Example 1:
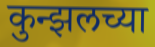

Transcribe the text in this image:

कुन्झलच्या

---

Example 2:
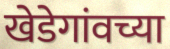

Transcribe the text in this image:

खेडेगांवच्या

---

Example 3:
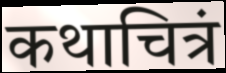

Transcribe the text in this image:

कथाचित्रं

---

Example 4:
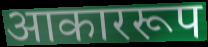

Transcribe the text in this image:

आकाररूप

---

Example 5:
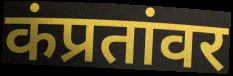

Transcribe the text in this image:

कंप्रतांवर